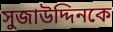
সুজাউদ্দিনকে